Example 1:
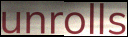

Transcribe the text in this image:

unrolls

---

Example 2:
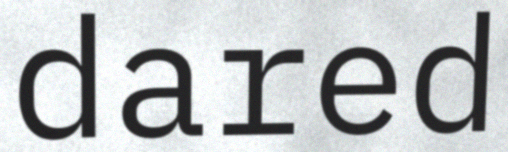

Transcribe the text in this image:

dared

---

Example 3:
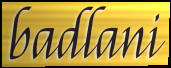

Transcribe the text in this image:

badlani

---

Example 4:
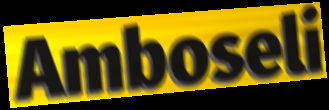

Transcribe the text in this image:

Amboseli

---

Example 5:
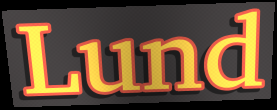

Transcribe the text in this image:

Lund